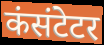
कंसंटेटर